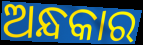
ଅନ୍ଧକାର